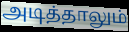
அடித்தாலும்